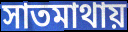
সাতমাথায়